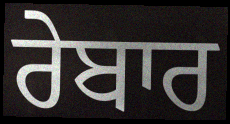
ਰੇਬਾਰ